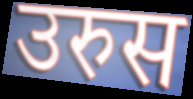
उरुस